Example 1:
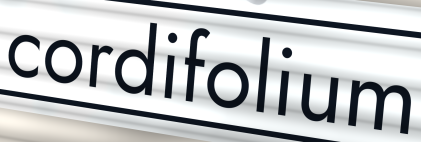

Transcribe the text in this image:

cordifolium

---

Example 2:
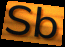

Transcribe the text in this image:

Sb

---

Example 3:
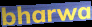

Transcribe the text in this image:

bharwa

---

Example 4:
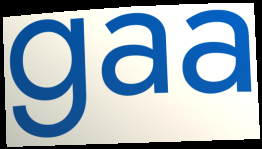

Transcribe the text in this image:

gaa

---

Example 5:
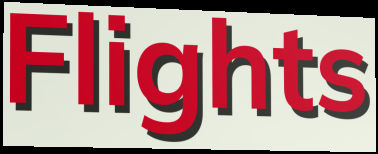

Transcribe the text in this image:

Flights